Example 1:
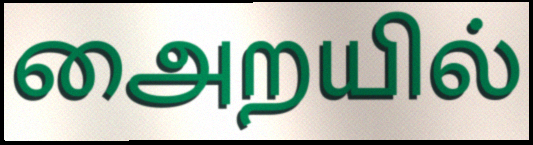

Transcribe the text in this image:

அைறயில்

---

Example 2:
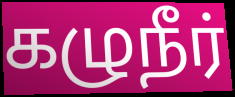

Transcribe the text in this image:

கழுநீர்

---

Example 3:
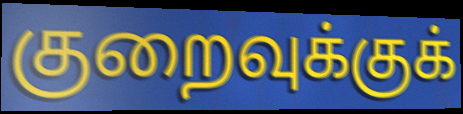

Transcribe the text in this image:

குறைவுக்குக்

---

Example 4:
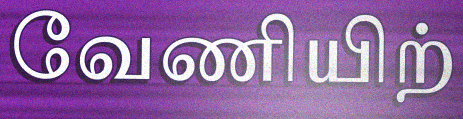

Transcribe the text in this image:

வேணியிற்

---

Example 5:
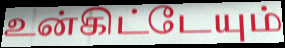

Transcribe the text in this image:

உன்கிட்டேயும்